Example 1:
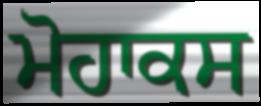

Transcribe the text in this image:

ਮੋਹਾਕਸ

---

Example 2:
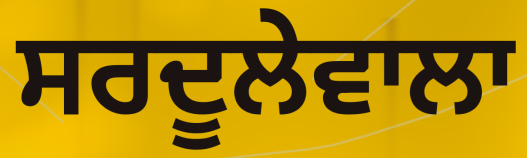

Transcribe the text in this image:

ਸਰਦੂਲੇਵਾਲਾ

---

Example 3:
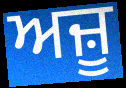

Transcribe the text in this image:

ਅਜ਼ੂ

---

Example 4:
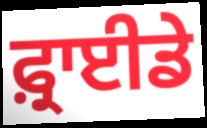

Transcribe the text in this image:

ਫ਼੍ਰਾਈਡੇ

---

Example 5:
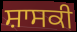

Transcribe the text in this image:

ਸ਼ਾਸਕੀ